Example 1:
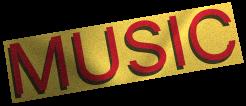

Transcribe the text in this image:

MUSIC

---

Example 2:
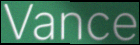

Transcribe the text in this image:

Vance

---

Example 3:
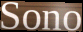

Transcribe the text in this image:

Sono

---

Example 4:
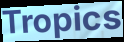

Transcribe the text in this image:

Tropics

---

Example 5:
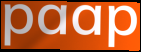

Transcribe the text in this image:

paap